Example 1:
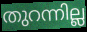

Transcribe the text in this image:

തുറന്നില്ല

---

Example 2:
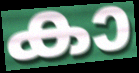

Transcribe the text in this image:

കാ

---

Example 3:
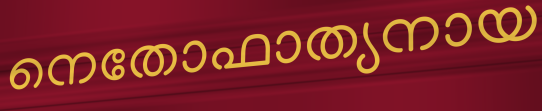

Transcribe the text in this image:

നെതോഫാത്യനായ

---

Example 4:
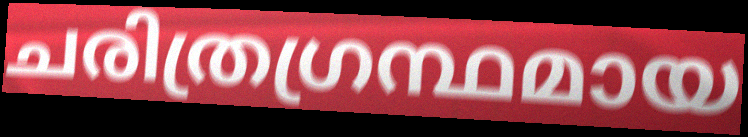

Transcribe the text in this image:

ചരിത്രഗ്രന്ഥമായ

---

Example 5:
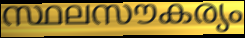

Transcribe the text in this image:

സ്ഥലസൗകര്യം